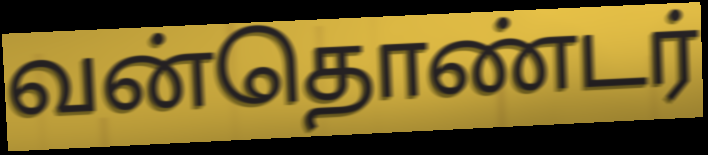
வன்தொண்டர்